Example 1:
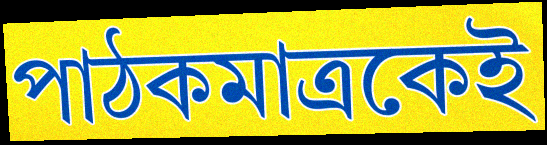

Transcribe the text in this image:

পাঠকমাত্রকেই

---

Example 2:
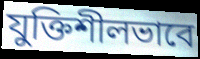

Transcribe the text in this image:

যুক্তিশীলভাবে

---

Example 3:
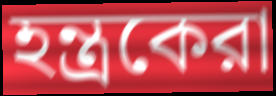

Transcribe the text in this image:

হন্ত্রকেরা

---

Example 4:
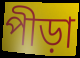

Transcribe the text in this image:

পীড়া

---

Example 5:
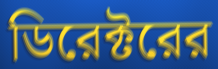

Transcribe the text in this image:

ডিরেক্টরের